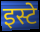
इस्टे